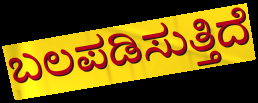
ಬಲಪಡಿಸುತ್ತಿದೆ